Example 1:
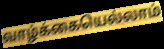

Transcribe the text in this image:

வாழ்க்கையெல்லாம்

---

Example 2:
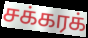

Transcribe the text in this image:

சக்கரக்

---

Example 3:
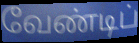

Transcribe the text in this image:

வேண்டிப்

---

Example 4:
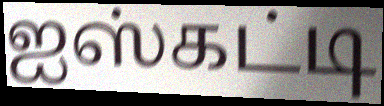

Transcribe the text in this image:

ஐஸ்கட்டி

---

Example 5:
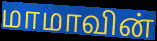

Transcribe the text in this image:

மாமாவின்